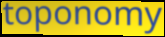
toponomy